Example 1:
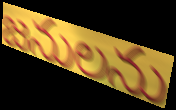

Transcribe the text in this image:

జనులను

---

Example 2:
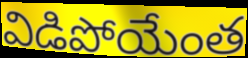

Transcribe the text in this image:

విడిపోయేంత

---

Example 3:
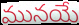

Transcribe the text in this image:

మునయే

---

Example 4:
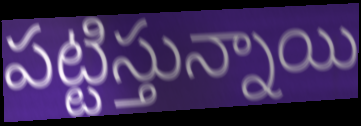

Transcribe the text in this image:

పట్టిస్తున్నాయి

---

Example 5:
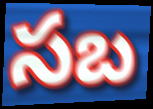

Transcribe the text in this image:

సబ